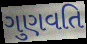
ગુણવતિ